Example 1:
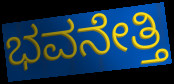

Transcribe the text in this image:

ಭವನೇತ್ತಿ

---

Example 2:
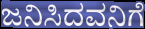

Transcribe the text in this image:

ಜನಿಸಿದವನಿಗೆ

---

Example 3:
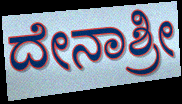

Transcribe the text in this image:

ದೇನಾಶ್ರೀ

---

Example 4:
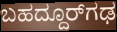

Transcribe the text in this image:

ಬಹದ್ದೂರ್‌ಗಢ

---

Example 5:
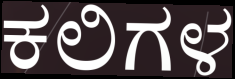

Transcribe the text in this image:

ಕಲಿಗಳ